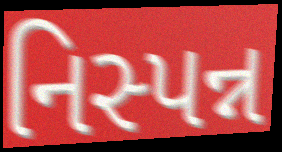
નિસ્પન્ન